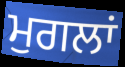
ਮੁਗਲਾਂ